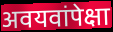
अवयवांपेक्षा